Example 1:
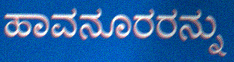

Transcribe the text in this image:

ಹಾವನೂರರನ್ನು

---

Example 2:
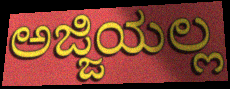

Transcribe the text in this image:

ಅಜ್ಜಿಯಲ್ಲ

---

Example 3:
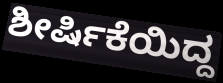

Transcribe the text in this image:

ಶೀರ್ಷಿಕೆಯಿದ್ದ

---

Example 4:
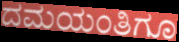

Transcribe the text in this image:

ದಮಯಂತಿಗೂ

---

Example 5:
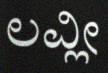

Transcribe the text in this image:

ಲವ್ಲೀ